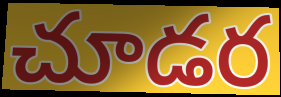
చూడర